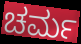
ಚರ್ಮ